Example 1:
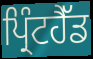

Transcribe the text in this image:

ਪ੍ਰਿੰਟਹੈੱਡ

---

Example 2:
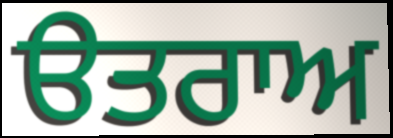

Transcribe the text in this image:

ੳਤਰਾਅ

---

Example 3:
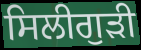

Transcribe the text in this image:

ਸਿਲੀਗੁੜੀ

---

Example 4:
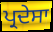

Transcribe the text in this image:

ਪ੍ਰਦੇਸਾ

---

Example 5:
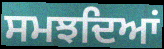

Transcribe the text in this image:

ਸਮਝਦਿਆਂ